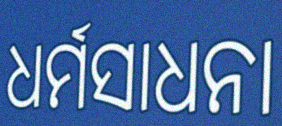
ଧର୍ମସାଧନା